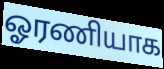
ஓரணியாக